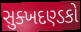
સુક્ખદણ્ડકો